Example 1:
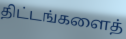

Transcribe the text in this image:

திட்டங்களைத்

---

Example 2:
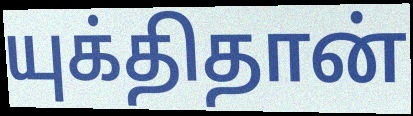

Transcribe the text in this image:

யுக்திதான்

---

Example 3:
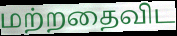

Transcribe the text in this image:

மற்றதைவிட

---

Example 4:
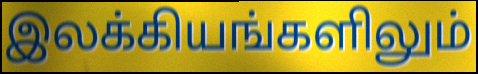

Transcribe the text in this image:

இலக்கியங்களிலும்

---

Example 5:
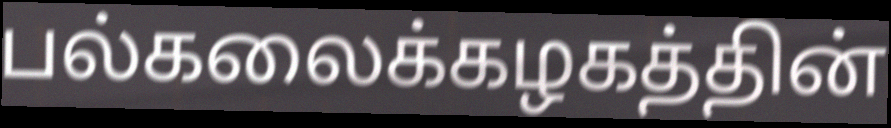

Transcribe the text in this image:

பல்கலைக்கழகத்தின்